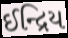
ઈન્દ્રિય